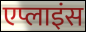
एप्लाइंस